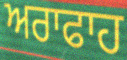
ਅਰਾਫਾਹ